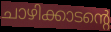
ചാഴിക്കാടന്റെ